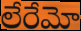
లేరేమో